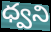
ధ్వని